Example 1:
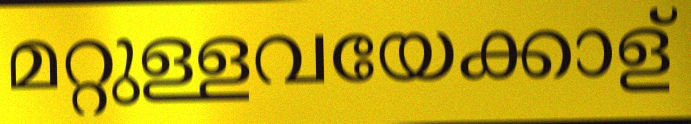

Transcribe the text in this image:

മറ്റുള്ളവയേക്കാള്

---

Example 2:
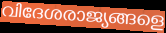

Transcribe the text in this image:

വിദേശരാജ്യങ്ങളെ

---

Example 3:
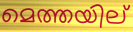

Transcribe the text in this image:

മെത്തയില്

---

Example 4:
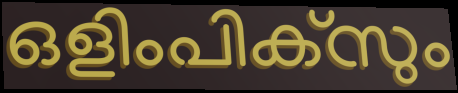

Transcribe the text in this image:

ഒളിംപിക്സും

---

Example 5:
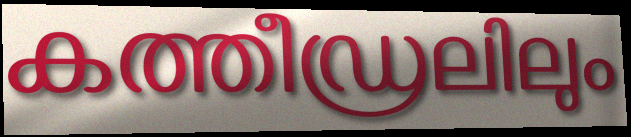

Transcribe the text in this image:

കത്തീഡ്രലിലും